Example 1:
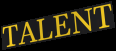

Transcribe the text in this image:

TALENT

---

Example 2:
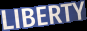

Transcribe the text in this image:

LIBERTY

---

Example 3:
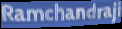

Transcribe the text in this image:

Ramchandraji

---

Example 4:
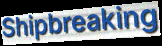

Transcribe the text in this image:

Shipbreaking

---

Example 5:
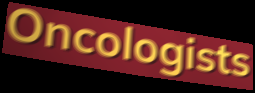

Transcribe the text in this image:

Oncologists